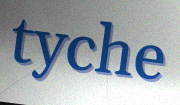
tyche